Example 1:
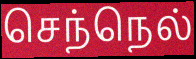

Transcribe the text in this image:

செந்நெல்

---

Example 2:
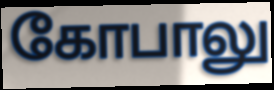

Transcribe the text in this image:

கோபாலு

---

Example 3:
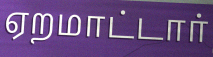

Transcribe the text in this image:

ஏறமாட்டார்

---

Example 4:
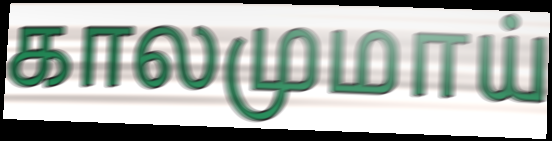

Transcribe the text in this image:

காலமுமாய்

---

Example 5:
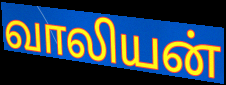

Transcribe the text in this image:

வாலியன்